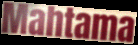
Mahtama